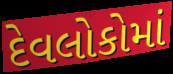
દેવલોકોમાં